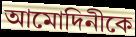
আমোদিনীকে